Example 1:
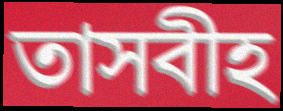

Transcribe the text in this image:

তাসবীহ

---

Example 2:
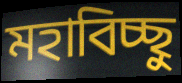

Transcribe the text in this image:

মহাবিচ্ছু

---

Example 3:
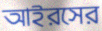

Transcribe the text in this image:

আইরসের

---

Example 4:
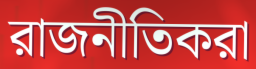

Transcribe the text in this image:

রাজনীতিকরা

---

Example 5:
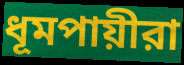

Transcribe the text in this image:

ধূমপায়ীরা